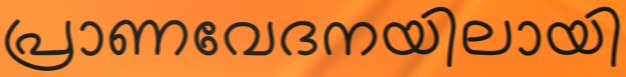
പ്രാണവേദനയിലായി